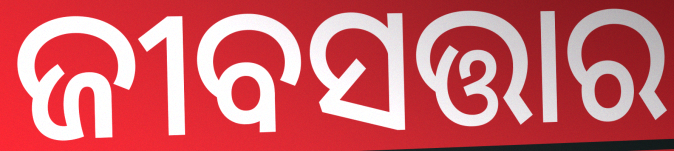
ଜୀବସତ୍ତାର